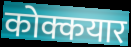
कोक्कयार